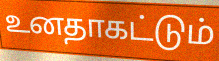
உனதாகட்டும்